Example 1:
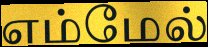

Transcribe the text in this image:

எம்மேல்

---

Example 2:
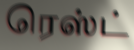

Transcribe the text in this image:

ரெஸ்ட்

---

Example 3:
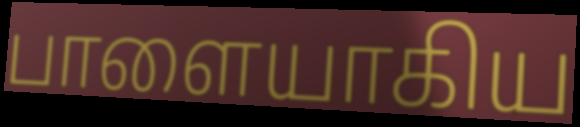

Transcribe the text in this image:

பாளையாகிய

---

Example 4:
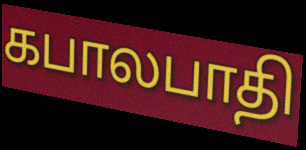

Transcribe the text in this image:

கபாலபாதி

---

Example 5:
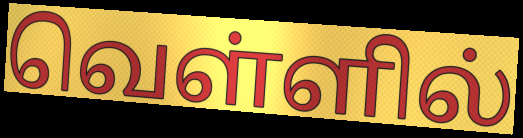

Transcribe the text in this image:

வெள்ளில்